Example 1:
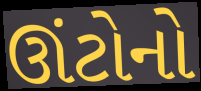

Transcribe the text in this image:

ઊંટોનો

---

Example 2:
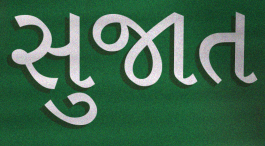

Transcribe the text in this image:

સુજાત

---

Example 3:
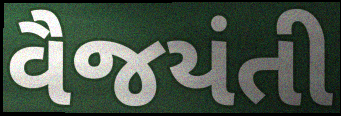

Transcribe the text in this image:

વૈજયંતી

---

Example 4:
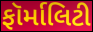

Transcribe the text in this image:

ફૉર્માલિટી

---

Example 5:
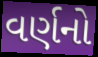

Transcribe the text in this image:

વર્ણનો